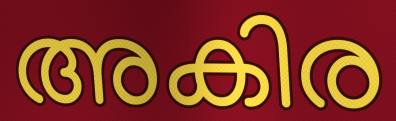
അകിര